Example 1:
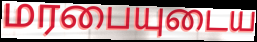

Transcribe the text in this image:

மரபையுடைய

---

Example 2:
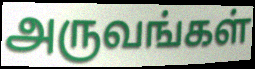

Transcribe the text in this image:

அருவங்கள்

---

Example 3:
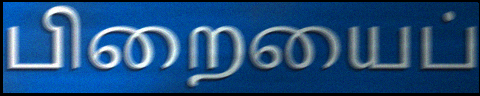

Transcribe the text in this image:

பிறையைப்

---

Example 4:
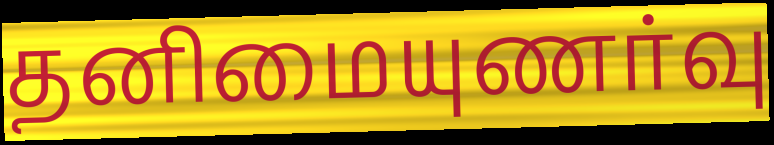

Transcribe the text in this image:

தனிமையுணர்வு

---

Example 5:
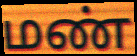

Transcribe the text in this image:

மண்